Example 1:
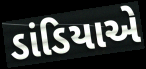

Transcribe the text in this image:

ડાંડિયાએ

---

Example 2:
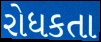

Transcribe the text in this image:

રોધકતા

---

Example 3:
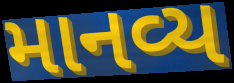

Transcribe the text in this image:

માનવ્ય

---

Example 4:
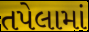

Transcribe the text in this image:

તપેલામાં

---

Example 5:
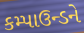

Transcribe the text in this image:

કમ્પાઉન્ડને